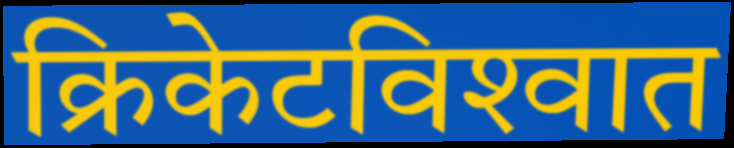
क्रिकेटविश्‍वात